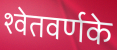
श्वेतवर्णके